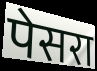
पेसरा